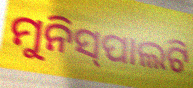
ମୁନିସ୍‍ପାଲଟି